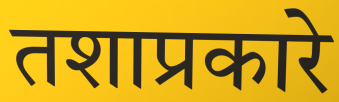
तशाप्रकारे